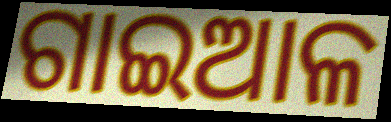
ଗାଇଆଳ